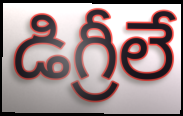
డిగ్రీలే